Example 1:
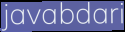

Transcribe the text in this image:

javabdari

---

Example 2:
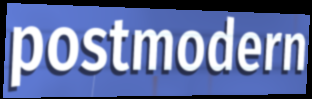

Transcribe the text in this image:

postmodern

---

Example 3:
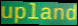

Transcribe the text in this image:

upland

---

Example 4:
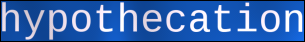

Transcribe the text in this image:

hypothecation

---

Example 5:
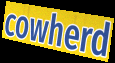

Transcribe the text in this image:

cowherd